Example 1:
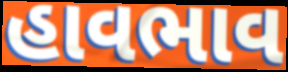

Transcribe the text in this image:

હાવભાવ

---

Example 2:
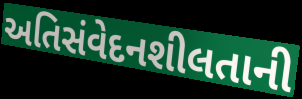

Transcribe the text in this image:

અતિસંવેદનશીલતાની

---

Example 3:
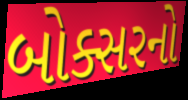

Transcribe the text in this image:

બોક્સરનો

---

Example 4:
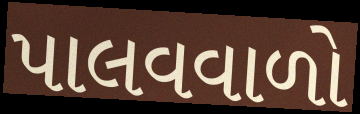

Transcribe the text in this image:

પાલવવાળો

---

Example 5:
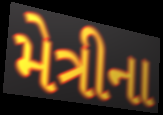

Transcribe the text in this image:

મેત્રીના